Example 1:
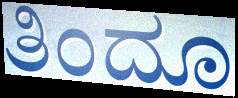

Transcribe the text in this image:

ತಿಂದೂ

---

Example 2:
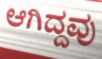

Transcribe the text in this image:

ಆಗಿದ್ದವು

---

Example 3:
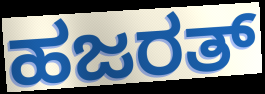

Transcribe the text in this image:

ಹಜರತ್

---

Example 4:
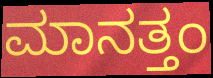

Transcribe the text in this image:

ಮಾನತ್ತಂ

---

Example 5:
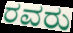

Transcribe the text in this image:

ರವರು